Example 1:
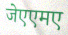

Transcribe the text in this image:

जेएएमए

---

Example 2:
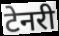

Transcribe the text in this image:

टेनरी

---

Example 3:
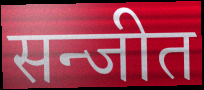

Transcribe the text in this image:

सन्जीत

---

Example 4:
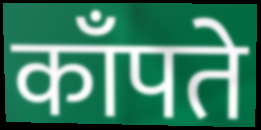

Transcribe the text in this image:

काँपते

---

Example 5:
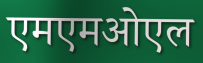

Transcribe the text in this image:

एमएमओएल